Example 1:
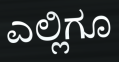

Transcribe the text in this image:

ಎಲ್ಲಿಗೂ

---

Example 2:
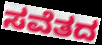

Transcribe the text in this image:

ಸವೆತದ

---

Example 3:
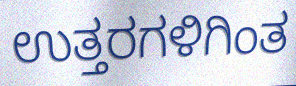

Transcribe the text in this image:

ಉತ್ತರಗಳಿಗಿಂತ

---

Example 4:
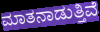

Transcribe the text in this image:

ಮಾತನಾಡುತ್ತಿವೆ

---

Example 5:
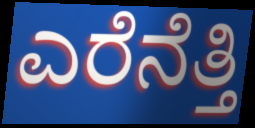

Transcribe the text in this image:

ಎರೆನೆತ್ತಿ